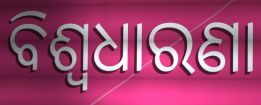
ବିଶ୍ୱଧାରଣା